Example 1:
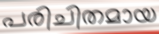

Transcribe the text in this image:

പരിചിതമായ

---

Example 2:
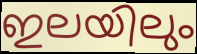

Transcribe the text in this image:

ഇലയിലും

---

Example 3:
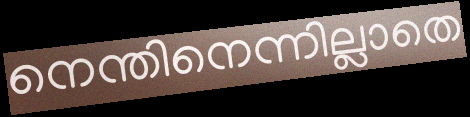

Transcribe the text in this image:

നെന്തിനെന്നില്ലാതെ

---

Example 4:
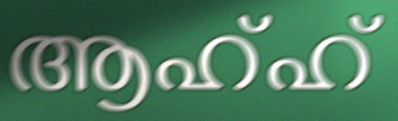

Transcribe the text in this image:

ആഹ്ഹ്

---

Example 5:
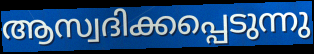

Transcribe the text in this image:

ആസ്വദിക്കപ്പെടുന്നു